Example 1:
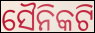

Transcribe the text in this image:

ସୈନିକଟି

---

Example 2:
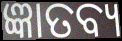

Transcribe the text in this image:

ଜ୍ଞାତବ୍ୟ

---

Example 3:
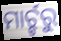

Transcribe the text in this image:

ମାର୍ଚ୍ଚରୁ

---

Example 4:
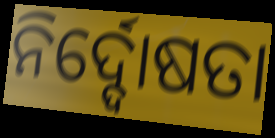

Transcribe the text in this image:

ନିର୍ଦ୍ଦୋଷତା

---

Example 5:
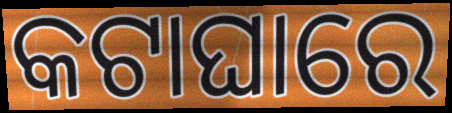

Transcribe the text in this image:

କଟାଘାରେ